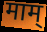
माम्